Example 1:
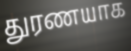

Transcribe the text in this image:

துரணயாக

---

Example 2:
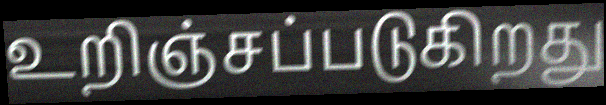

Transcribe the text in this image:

உறிஞ்சப்படுகிறது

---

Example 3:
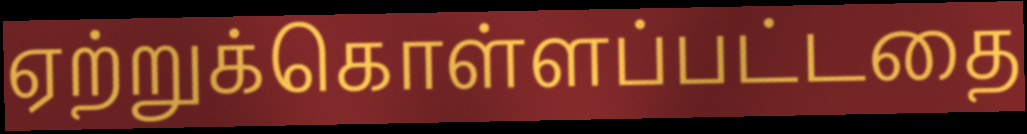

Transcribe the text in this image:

ஏற்றுக்கொள்ளப்பட்டதை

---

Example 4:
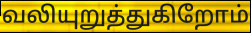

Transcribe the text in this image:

வலியுறுத்துகிறோம்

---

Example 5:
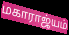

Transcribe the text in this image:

மகாராஜ்யம்